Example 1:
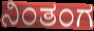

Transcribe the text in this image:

ನಿಂತಂಗ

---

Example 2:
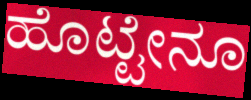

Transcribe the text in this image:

ಹೊಟ್ಟೇನೂ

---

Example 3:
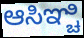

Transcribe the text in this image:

ಆಸಿಞ್ಚಿ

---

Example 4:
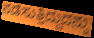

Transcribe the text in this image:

ನಡೆಸುತ್ತಿದ್ದುದನ್ನು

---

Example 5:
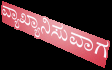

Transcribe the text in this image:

ವ್ಯಾಖ್ಯಾನಿಸುವಾಗ